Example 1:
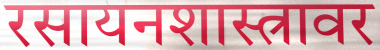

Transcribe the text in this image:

रसायनशास्त्रावर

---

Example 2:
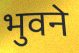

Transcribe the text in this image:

भुवने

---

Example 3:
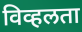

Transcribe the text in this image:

विव्हलता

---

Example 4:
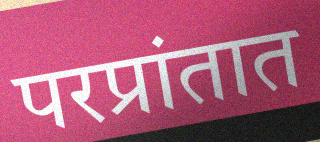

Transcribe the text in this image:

परप्रांतात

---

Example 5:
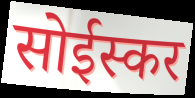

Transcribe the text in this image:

सोईस्कर